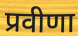
प्रवीणा